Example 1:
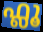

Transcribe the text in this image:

ഫ്ലൂ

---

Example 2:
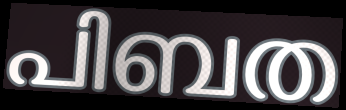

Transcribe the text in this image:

പിബത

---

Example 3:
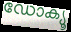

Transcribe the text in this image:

ഡോക്യൂ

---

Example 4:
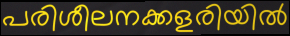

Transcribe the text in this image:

പരിശീലനക്കളരിയിൽ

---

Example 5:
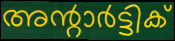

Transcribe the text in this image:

അന്റാർട്ടിക്